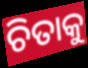
ଚିତାକୁ